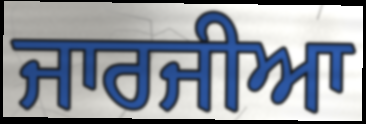
ਜਾਰਜੀਆ